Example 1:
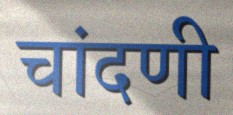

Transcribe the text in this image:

चांदणी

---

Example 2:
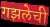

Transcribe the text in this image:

गझलेची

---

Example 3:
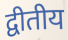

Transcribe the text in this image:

द्वीतीय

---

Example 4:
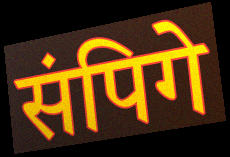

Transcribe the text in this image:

संपिगे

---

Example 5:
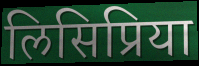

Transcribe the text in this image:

लिसिप्रिया